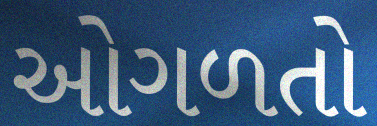
ઓગળતો